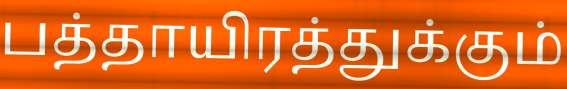
பத்தாயிரத்துக்கும்